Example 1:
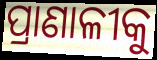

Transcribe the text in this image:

ପ୍ରାଣାଳୀକୁ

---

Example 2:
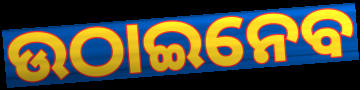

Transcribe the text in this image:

ଉଠାଇନେବ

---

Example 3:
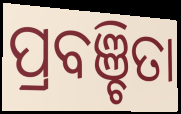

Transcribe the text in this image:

ପ୍ରବଞ୍ଚିତା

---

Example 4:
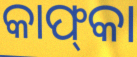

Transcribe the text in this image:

କାଫ୍‌କା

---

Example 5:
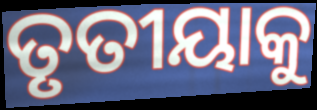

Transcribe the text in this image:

ତୃତୀୟାକୁ